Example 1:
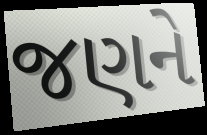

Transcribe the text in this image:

જણને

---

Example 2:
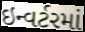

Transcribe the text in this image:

ઇન્વર્ટરમાં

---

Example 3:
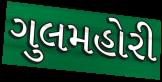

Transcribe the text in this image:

ગુલમહોરી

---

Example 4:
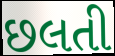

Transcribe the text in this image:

છલતી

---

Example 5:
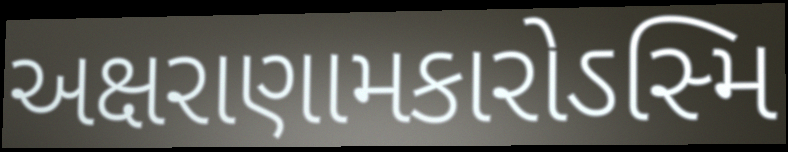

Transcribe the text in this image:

અક્ષરાણામકારોઽસ્મિ